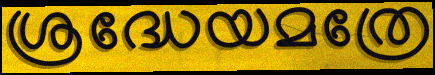
ശ്രദ്ധേയമത്രേ